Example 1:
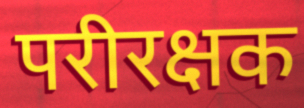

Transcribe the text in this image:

परीरक्षक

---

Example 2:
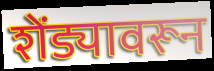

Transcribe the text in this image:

शेंड्यावरून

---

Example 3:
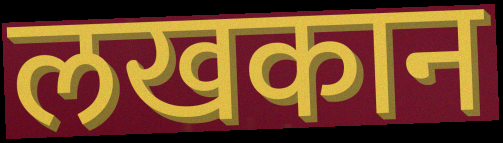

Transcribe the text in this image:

लखकान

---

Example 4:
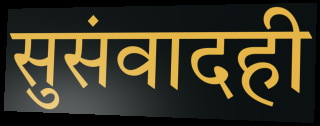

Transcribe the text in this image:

सुसंवादही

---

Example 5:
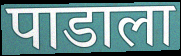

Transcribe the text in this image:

पाडाला